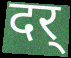
दर्